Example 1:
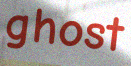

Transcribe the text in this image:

ghost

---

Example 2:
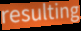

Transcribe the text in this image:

resulting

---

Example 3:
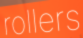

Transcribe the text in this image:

rollers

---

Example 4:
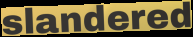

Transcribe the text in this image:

slandered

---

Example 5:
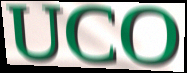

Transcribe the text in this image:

UCO